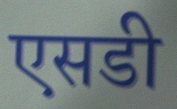
एसडी